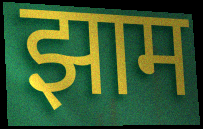
झाम